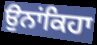
ਉਨਾਂਕਿਹਾ